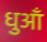
धुआँ